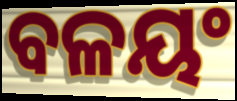
ବଳୟଂ